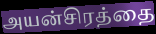
அயன்சிரத்தை